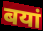
बयां